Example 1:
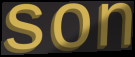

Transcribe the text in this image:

son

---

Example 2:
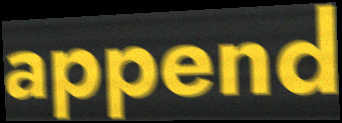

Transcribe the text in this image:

append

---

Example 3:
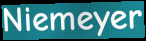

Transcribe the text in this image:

Niemeyer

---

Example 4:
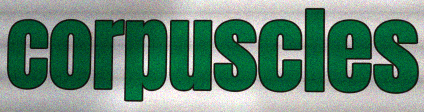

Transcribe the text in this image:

corpuscles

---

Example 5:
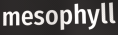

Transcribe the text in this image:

mesophyll